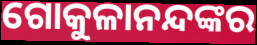
ଗୋକୁଳାନନ୍ଦଙ୍କର